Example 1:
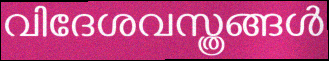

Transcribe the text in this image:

വിദേശവസ്ത്രങ്ങൾ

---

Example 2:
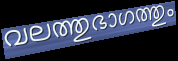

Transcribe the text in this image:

വലത്തുഭാഗത്തും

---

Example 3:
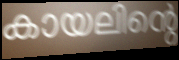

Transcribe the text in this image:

കായലിന്റെ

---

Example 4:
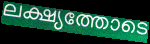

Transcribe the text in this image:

ലക്ഷ്യത്തോടെ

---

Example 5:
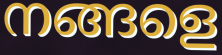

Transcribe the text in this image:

നങ്ങളെ